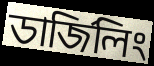
ডার্জিলিং